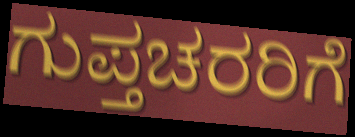
ಗುಪ್ತಚರರಿಗೆ